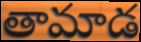
తామాడ